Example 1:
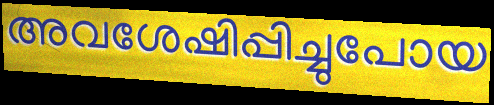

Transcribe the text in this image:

അവശേഷിപ്പിച്ചുപോയ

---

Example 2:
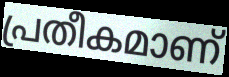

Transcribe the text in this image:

പ്രതീകമാണ്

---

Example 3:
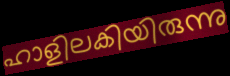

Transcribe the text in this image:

ഹാളിലകിയിരുന്നു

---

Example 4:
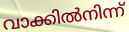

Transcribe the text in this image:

വാക്കിൽനിന്ന്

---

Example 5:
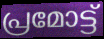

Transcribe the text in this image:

പ്രമോട്ട്